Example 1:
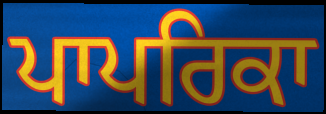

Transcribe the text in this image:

ਪਾਪਰਿਕਾ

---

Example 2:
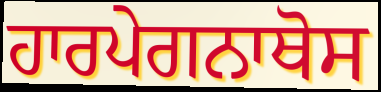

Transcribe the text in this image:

ਹਾਰਪੇਗਨਾਥੋਸ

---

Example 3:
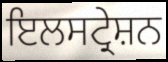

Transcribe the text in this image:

ਇਲਸਟ੍ਰੇਸ਼ਨ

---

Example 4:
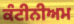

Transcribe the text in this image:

ਕੰਟੀਨੀਅਮ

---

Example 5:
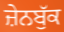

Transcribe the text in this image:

ਜ਼ੇਨਬੁੱਕ